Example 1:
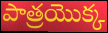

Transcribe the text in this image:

పాత్రయొక్క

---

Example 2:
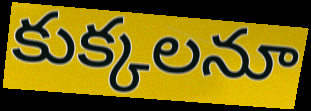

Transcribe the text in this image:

కుక్కలనూ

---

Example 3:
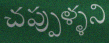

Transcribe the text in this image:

చప్పుళ్ళని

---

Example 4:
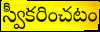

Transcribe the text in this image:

స్వీకరించటం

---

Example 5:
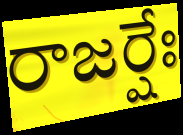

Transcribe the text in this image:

రాజర్షేః